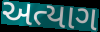
અત્યાગ